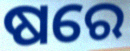
ଷରେ